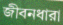
জীবনধারা